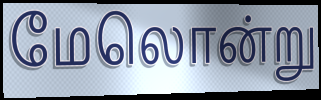
மேலொன்று